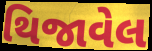
થિજાવેલ